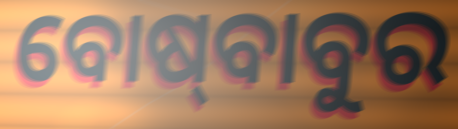
ବୋଷ୍‍ବାବୁର